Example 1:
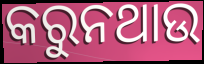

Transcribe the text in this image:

କରୁନଥାଉ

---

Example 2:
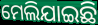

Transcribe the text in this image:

ମେଲିଯାଇଛି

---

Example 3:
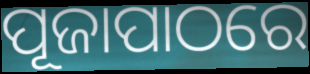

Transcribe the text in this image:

ପୂଜାପାଠରେ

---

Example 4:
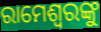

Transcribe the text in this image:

ରାମେଶ୍ୱରଙ୍କୁ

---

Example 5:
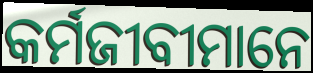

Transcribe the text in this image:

କର୍ମଜୀବୀମାନେ